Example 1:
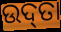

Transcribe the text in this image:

ଉଦ୍‌ତା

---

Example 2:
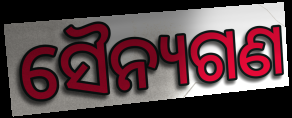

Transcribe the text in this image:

ସୈନ୍ୟଗଣ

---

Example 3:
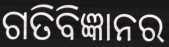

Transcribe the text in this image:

ଗତିବିଜ୍ଞାନର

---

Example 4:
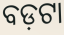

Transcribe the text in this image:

ବଡ଼ଟା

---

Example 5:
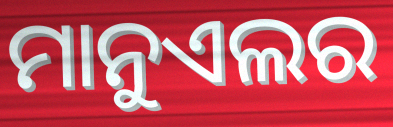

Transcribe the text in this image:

ମାନୁଏଲର